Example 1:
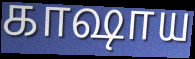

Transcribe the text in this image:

காஷாய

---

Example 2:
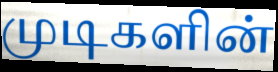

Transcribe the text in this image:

முடிகளின்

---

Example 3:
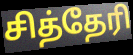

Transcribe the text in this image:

சித்தேரி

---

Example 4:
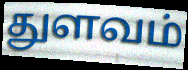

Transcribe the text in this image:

துளவம்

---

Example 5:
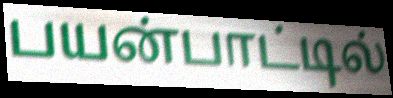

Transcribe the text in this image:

பயன்பாட்டில்